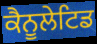
ਕੈਨੂਲੇਟਿਡ